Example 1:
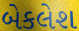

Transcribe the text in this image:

બેકલેશ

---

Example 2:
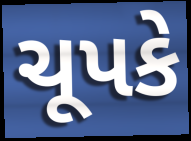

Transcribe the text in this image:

ચૂપકે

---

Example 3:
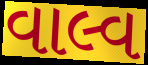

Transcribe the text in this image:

વાલ્વ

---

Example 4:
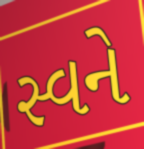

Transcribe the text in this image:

સ્વને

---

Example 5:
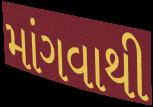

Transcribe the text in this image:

માંગવાથી